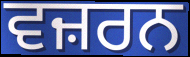
ਵਜ਼ਰਨ